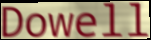
Dowell